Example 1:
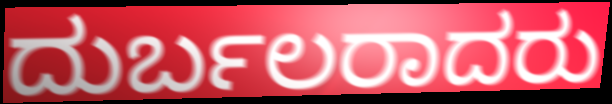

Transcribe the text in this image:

ದುರ್ಬಲರಾದರು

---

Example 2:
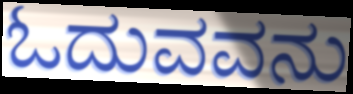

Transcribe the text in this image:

ಓದುವವನು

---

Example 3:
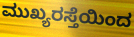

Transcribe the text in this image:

ಮುಖ್ಯರಸ್ತೆಯಿಂದ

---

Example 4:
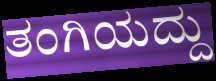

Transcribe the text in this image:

ತಂಗಿಯದ್ದು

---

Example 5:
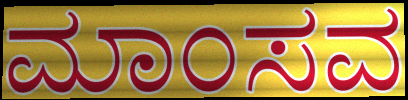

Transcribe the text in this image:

ಮಾಂಸವ